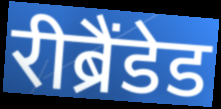
रीब्रैंडेड